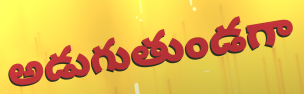
అడుగుతుండగా